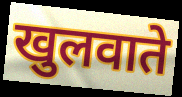
खुलवाते